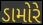
ડામોરે